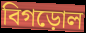
বিগড়োল